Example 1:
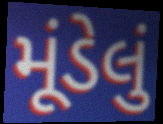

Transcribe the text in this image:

મૂંડેલું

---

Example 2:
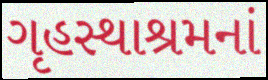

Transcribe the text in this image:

ગૃહસ્થાશ્રમનાં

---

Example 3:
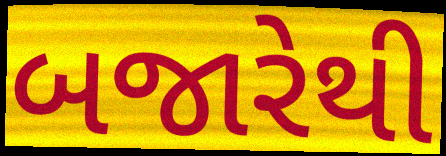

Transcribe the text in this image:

બજારેથી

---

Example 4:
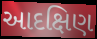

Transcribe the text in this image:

આદક્ષિણ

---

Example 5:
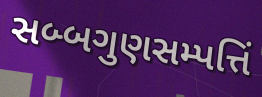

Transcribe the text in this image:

સબ્બગુણસમ્પત્તિં